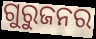
ଗୁରୁଜନର